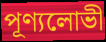
পূণ্যলোভী